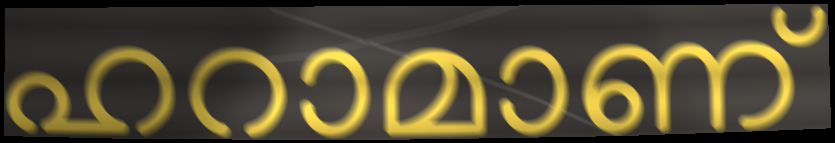
ഹറാമാണ്